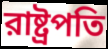
রাষ্ট্রপতি